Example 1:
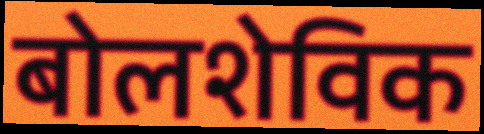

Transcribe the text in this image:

बोलशेविक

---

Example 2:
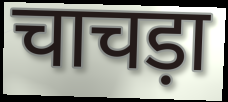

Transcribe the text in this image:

चाचड़ा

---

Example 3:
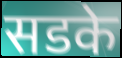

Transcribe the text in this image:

सडके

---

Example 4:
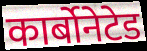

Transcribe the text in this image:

कार्बोनेटेड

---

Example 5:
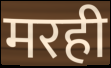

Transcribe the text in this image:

मरही